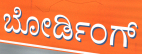
ಬೋರ್ಡಿಂಗ್